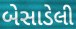
બેસાડેલી